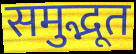
समुद्भूत